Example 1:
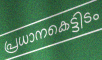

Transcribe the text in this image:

പ്രധാനകെട്ടിടം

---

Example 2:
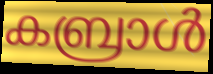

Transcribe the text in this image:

കബ്രാൾ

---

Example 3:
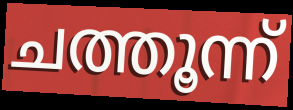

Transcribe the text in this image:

ചത്തൂന്ന്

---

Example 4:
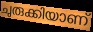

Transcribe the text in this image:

ചുരുക്കിയാണ്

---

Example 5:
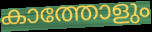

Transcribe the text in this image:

കാത്തോളും